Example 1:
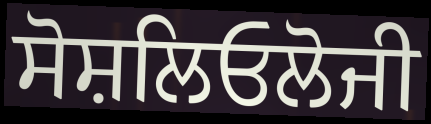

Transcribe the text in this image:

ਸੋਸ਼ਲਿਓਲੋਜੀ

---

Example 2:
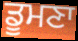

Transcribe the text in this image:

ਡੂਮਣਾ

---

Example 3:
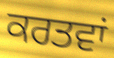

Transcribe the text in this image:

ਕਰਤਵਾਂ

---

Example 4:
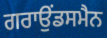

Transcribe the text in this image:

ਗਰਾਉਂਡਸਮੈਨ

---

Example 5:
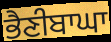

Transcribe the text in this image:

ਭੈਣੀਬਾਘਾ